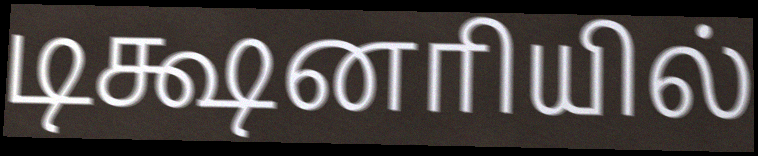
டிக்ஷனரியில்